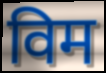
विम